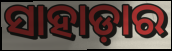
ସାହାଡ଼ାର